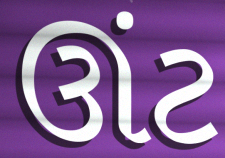
ઊંટ